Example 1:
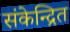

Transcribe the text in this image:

संकेन्द्रित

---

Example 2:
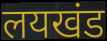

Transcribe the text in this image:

लयखंड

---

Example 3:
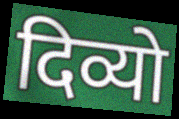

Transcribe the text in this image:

दिव्यो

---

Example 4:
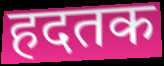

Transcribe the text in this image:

हदतक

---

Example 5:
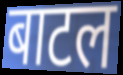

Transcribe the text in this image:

बाटल